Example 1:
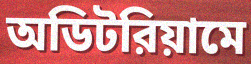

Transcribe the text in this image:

অডিটরিয়ামে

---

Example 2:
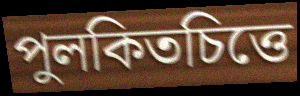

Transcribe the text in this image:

পুলকিতচিত্তে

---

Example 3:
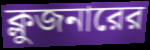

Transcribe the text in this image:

ক্লুজনারের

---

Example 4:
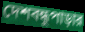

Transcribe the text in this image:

দেশবন্ধুপাড়ার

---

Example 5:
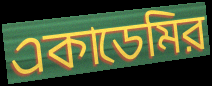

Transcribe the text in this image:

একাডেমির